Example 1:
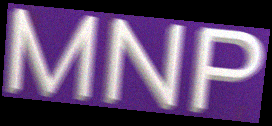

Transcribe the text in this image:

MNP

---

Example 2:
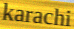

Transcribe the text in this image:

karachi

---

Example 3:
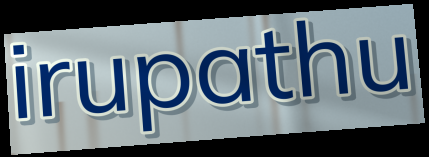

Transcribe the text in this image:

irupathu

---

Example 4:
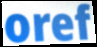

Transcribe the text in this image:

oref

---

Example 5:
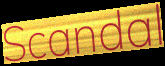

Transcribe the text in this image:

Scandal